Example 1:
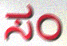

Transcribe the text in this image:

ಸಂ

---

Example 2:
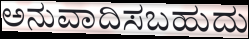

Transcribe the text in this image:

ಅನುವಾದಿಸಬಹುದು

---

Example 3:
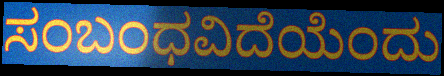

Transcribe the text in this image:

ಸಂಬಂಧವಿದೆಯೆಂದು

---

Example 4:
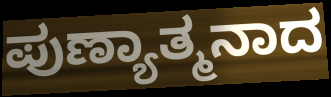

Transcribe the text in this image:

ಪುಣ್ಯಾತ್ಮನಾದ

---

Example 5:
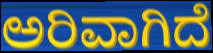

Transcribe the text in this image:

ಅರಿವಾಗಿದೆ